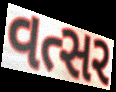
વત્સર